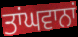
ਤਾਂਘਵਾਨਾਂ